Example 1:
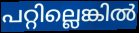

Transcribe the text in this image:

പറ്റില്ലെങ്കിൽ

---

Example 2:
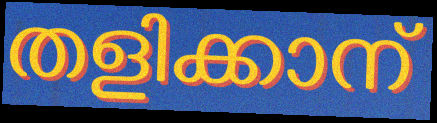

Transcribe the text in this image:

തളിക്കാന്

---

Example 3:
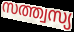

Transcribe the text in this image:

സത്ത്വസ്യ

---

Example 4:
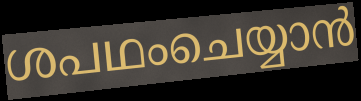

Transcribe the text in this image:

ശപഥംചെയ്യാൻ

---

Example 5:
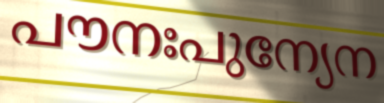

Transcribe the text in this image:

പൗനഃപുന്യേന